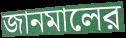
জানমালের